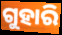
ଗୁହାରି